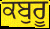
ਕਬੁਰੂ